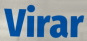
Virar